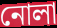
নোলা